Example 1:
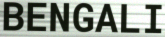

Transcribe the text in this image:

BENGALI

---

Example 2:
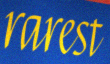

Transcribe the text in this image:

rarest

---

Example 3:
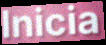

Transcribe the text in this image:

Inicia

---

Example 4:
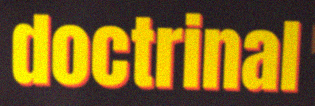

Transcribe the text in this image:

doctrinal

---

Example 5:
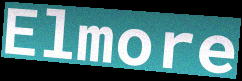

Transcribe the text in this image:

Elmore